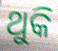
ଥୁକି